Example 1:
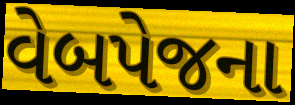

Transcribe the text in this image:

વેબપેજના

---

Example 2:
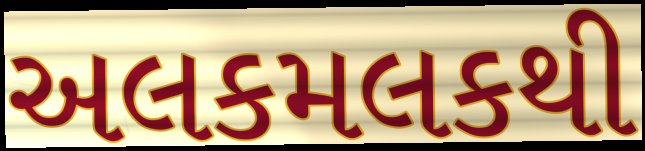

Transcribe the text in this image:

અલકમલકથી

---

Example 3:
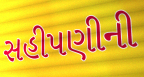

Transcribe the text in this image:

સહીપણીની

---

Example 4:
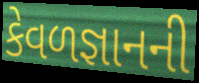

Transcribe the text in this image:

કેવળજ્ઞાનની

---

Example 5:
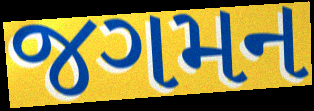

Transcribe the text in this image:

જગમન